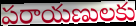
పరాయణులకు